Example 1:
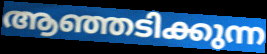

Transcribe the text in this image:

ആഞ്ഞടിക്കുന്ന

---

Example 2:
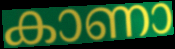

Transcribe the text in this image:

കാണാ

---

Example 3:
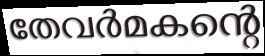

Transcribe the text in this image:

തേവർമകന്റെ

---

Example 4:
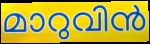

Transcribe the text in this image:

മാറുവിൻ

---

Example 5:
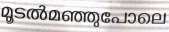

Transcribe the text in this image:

മൂടൽമഞ്ഞുപോലെ